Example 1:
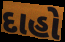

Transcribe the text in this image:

દાહો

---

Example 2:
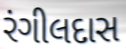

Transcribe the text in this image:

રંગીલદાસ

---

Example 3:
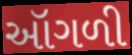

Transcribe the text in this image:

ઑગળી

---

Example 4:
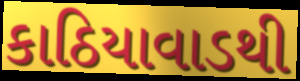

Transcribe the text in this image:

કાઠિયાવાડથી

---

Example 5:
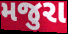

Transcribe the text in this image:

મજુરા